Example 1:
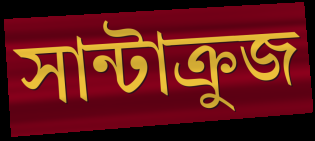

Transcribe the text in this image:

সান্টাক্রুজ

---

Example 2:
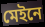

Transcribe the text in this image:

মেইনে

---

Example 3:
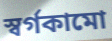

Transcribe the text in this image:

স্বর্গকামো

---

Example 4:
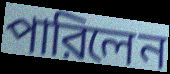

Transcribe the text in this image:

পারিলেন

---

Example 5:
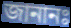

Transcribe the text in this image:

জানানঃ